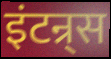
इंटन्र्स